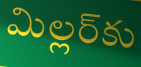
మిల్లర్‌కు